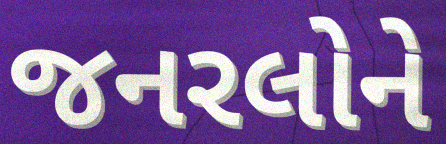
જનરલોને